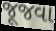
જૂજવા